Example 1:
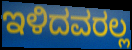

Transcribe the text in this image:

ಇಳಿದವರಲ್ಲ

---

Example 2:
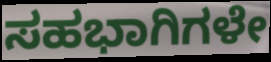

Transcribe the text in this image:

ಸಹಭಾಗಿಗಳೇ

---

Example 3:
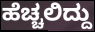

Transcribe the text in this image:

ಹೆಚ್ಚಲಿದ್ದು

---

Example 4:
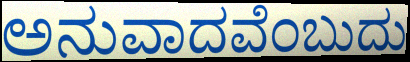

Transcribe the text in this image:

ಅನುವಾದವೆಂಬುದು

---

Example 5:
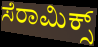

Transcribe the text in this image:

ಸೆರಾಮಿಕ್ಸ್